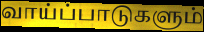
வாய்ப்பாடுகளும்